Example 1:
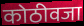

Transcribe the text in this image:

कोठीवजा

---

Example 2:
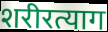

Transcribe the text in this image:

शरीरत्याग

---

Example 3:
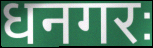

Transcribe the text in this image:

धनगरः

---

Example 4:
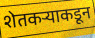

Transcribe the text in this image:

शेतकऱ्याकडून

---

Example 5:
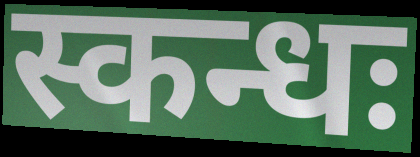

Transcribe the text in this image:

स्कन्धः